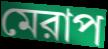
মেরাপ